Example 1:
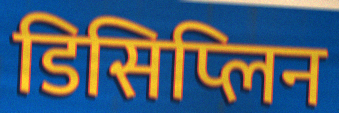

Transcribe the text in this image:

डिसिप्लिन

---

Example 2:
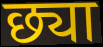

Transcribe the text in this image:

छ्या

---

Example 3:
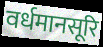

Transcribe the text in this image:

वर्धमानसूरि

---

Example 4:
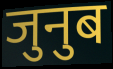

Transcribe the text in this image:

जुनुब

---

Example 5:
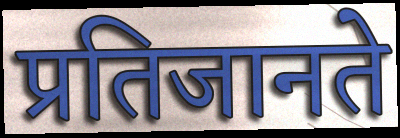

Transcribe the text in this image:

प्रतिजानते